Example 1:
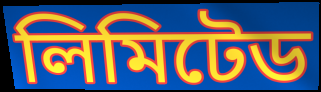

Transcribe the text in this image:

লিমিটেড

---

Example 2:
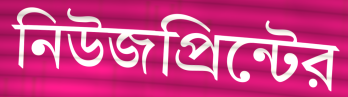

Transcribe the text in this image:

নিউজপ্রিন্টের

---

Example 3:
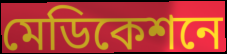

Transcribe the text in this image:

মেডিকেশনে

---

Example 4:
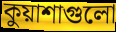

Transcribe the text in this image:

কুয়াশাগুলো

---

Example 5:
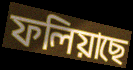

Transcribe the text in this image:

ফলিয়াছে